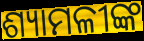
ଶ୍ୟାମଳୀଙ୍କ